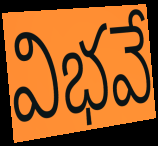
విభవే